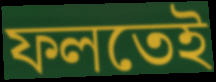
ফলতেই